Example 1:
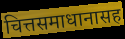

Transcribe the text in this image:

चित्तसमाधानासह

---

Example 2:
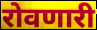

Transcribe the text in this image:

रोवणारी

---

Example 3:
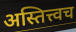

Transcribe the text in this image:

अस्तित्त्वच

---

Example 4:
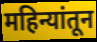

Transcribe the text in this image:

महिन्यांतून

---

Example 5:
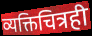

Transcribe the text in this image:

व्यक्तिचित्रही